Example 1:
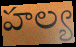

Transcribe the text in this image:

హల్య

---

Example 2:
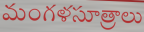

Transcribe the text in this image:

మంగళసూత్రాలు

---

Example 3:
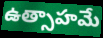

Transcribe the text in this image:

ఉత్సాహమే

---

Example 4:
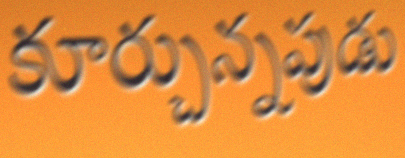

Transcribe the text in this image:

కూర్చున్నపుడు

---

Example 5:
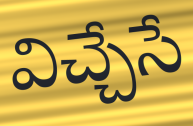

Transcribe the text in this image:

విచ్చేసే